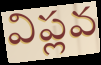
విప్లవ